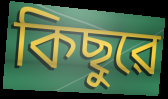
কিছুৱে